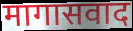
मागासवाद